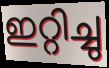
ഇറ്റിച്ചു